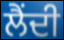
ਲੈਂਦੀ